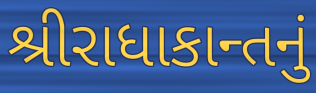
શ્રીરાધાકાન્તનું